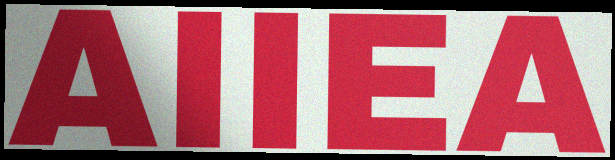
AIIEA